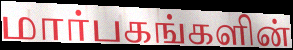
மார்பகங்களின்